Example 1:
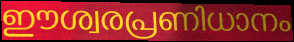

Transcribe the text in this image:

ഈശ്വരപ്രണിധാനം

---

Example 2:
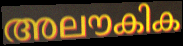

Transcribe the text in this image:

അലൗകിക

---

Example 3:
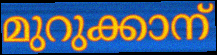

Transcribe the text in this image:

മുറുക്കാന്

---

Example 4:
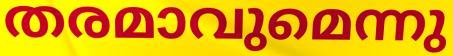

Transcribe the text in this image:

തരമാവുമെന്നു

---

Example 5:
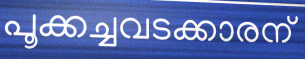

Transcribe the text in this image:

പൂക്കച്ചവടക്കാരന്